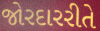
જોરદારરીતે